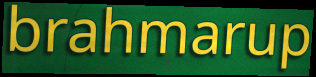
brahmarup